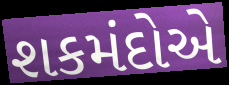
શકમંદોએ